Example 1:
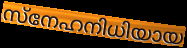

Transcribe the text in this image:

സ്നേഹനിധിയായ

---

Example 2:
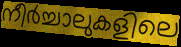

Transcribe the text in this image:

നീർച്ചാലുകളിലെ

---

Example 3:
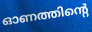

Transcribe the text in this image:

ഓണത്തിന്റെ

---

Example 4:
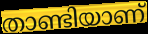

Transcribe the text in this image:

താണ്ടിയാണ്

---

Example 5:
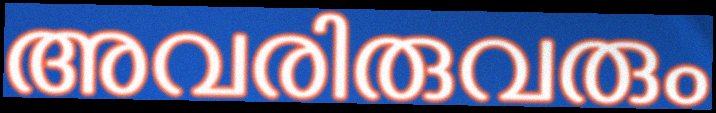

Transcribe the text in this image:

അവരിരുവരും